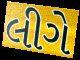
લીગે